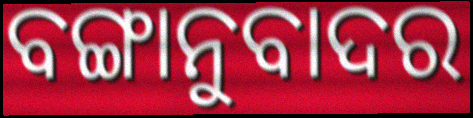
ବଙ୍ଗାନୁବାଦର